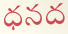
ధనద